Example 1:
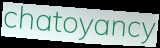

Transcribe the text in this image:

chatoyancy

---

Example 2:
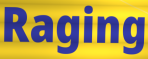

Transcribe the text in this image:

Raging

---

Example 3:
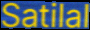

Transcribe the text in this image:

Satilal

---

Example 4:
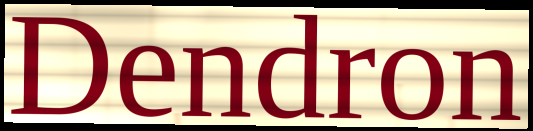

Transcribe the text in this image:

Dendron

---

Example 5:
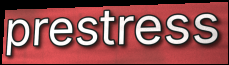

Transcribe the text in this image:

prestress